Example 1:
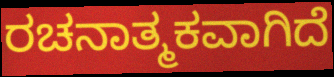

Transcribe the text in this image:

ರಚನಾತ್ಮಕವಾಗಿದೆ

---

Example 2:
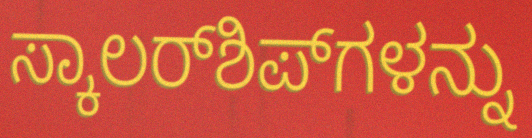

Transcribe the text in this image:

ಸ್ಕಾಲರ್‌ಶಿಪ್‌ಗಳನ್ನು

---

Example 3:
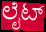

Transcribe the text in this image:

ಲೈಟ್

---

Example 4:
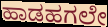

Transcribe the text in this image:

ಹಾಡಹಗಲೇ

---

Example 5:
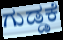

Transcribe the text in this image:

ಗುಡ್ಡಕೆ